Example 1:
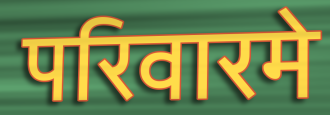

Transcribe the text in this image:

परिवारमे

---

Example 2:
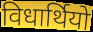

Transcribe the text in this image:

विधार्थियो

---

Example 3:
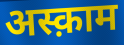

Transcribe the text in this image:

अस्क़ाम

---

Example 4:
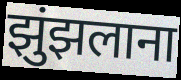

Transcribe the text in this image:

झुंझलाना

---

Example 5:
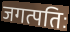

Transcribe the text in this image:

जगत्पतिः